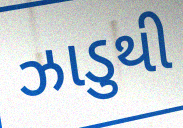
ઝાડુથી